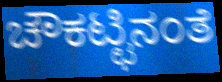
ಚೌಕಟ್ಟಿನಂತೆ